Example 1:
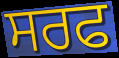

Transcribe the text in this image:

ਸਰਫ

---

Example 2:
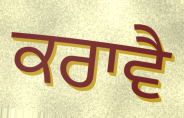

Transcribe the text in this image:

ਕਰਾਵੈ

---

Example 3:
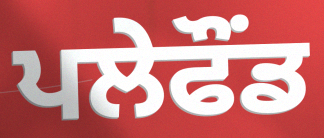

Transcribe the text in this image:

ਪਲੇਫੌਂਡ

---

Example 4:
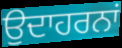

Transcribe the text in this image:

ਉਦਾਹਰਨਾਂ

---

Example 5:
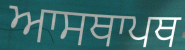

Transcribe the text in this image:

ਆਸਥਾਪਥ